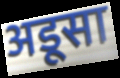
अडूसा